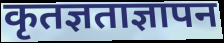
कृतज्ञताज्ञापन